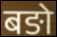
बङो